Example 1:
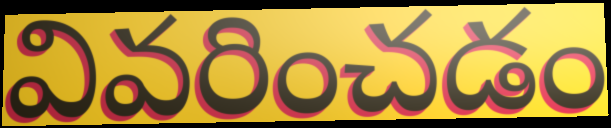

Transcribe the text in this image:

వివరించడం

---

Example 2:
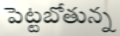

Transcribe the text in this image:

పెట్టబోతున్న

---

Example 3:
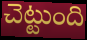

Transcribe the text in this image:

చెట్టుంది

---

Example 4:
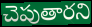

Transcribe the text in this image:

చెపుతారని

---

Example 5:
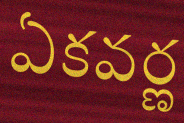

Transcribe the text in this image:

ఏకవర్ణ